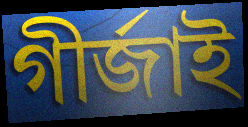
গীৰ্জাই